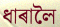
ধাৰালৈ